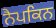
ਨੈਪਕਿਨ